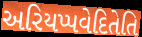
અરિયપ્પવેદિતેતિ